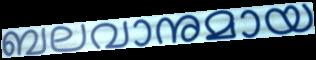
ബലവാനുമായ